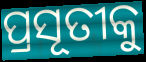
ପ୍ରସୂତୀକୁ